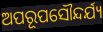
ଅପରୂପସୌନ୍ଦର୍ଯ୍ୟ